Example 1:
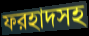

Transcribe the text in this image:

ফরহাদসহ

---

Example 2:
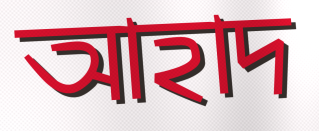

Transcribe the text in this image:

আহাদ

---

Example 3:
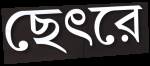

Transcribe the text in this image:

ছেৎরে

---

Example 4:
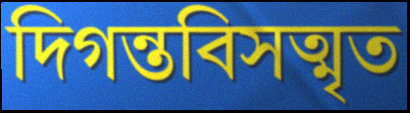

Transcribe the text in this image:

দিগন্তবিসত্মৃত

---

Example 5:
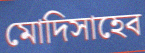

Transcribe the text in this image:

মোদিসাহেব